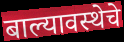
बाल्यावस्थेचे